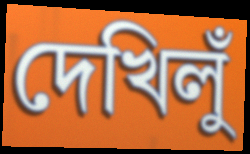
দেখিলুঁ